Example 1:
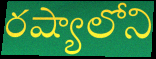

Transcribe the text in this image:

రష్యాలోని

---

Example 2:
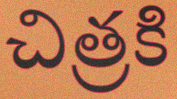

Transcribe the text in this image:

చిత్రకి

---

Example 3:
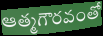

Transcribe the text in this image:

ఆత్మగౌరవంతో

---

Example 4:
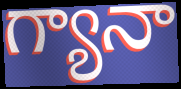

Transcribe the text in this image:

గ్యానా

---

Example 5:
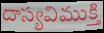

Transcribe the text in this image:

దాస్యవిముక్తి